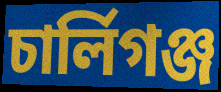
চার্লিগঞ্জ